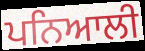
ਪਨਿਆਲੀ